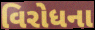
વિરોધના